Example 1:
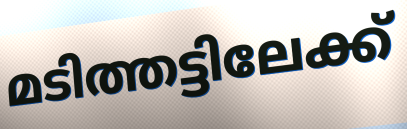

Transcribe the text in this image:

മടിത്തട്ടിലേക്ക്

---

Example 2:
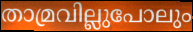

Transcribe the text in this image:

താമ്രവില്ലുപോലും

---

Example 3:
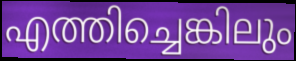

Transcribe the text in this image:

എത്തിച്ചെങ്കിലും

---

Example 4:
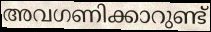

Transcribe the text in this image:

അവഗണിക്കാറുണ്ട്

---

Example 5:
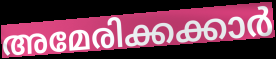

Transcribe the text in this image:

അമേരിക്കക്കാർ